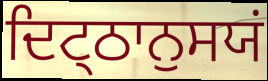
ਦਿਟ੍ਠਾਨੁਸਯਂ